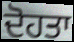
ਦੋਹਤਾ